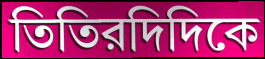
তিতিরদিদিকে